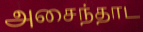
அசைந்தாட